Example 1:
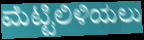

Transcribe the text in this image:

ಮೆಟ್ಟಿಲಿಳಿಯಲು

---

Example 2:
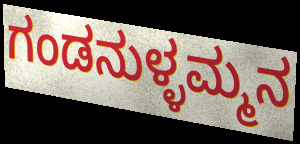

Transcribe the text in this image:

ಗಂಡನುಳ್ಳಮ್ಮನ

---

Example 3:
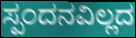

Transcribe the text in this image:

ಸ್ಪಂದನವಿಲ್ಲದ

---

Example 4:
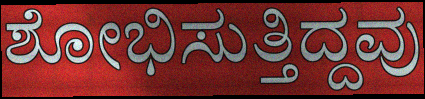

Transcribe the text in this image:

ಶೋಭಿಸುತ್ತಿದ್ದವು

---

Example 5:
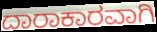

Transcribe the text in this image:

ದಾರಾಕಾರವಾಗಿ